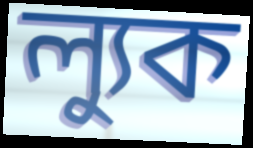
ল্যুক